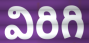
విరిగి